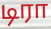
டிரா